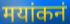
मयांकनं